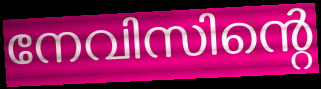
നേവിസിന്റെ